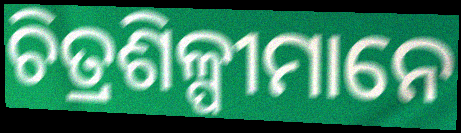
ଚିତ୍ରଶିଳ୍ପୀମାନେ